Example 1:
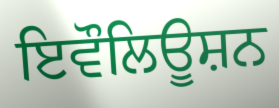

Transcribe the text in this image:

ਇਵੌਲਿਊਸ਼ਨ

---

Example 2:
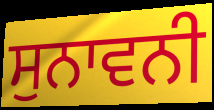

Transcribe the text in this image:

ਸੁਨਾਵਨੀ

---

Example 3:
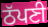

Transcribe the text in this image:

ਠੱਪਣੀ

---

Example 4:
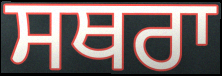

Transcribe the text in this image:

ਸਥਰਾ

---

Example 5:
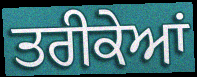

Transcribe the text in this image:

ਤਰੀਕੇਆਂ